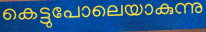
കെട്ടുപോലെയാകുന്നു